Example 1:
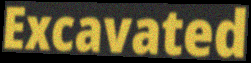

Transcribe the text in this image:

Excavated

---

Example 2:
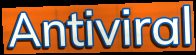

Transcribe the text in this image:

Antiviral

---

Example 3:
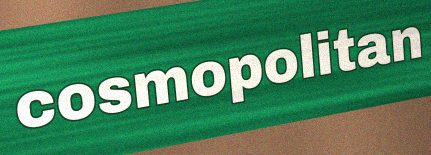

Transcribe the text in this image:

cosmopolitan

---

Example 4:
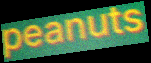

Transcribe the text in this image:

peanuts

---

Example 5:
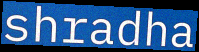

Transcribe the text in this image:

shradha